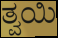
ತ್ವಯಿ